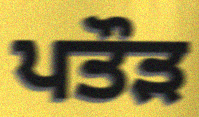
ਪਤੌੜ